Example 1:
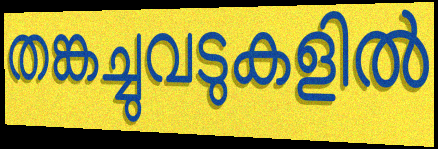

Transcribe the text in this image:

തങ്കച്ചുവടുകളിൽ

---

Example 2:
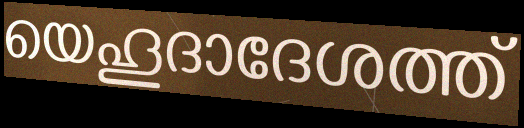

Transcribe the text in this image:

യെഹൂദാദേശത്ത്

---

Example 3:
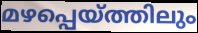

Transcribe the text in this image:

മഴപ്പെയ്ത്തിലും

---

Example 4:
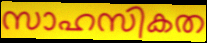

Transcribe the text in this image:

സാഹസികത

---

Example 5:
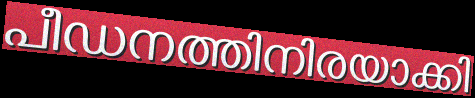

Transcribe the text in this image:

പീഡനത്തിനിരയാക്കി